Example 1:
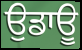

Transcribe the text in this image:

ਉਡਾਊ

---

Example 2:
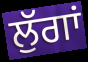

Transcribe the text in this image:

ਲੁੱਗਾਂ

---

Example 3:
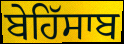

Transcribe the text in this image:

ਬੇਹਿੱਸਾਬ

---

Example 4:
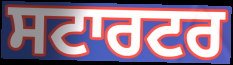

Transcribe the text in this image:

ਸਟਾਰਟਰ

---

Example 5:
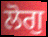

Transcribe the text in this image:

ਲੋਗੁ